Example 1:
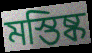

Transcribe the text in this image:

মস্তিষ্ক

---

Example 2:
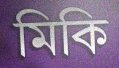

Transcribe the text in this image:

মিকি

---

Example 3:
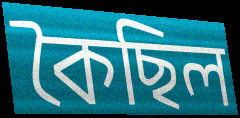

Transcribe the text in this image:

কৈছিল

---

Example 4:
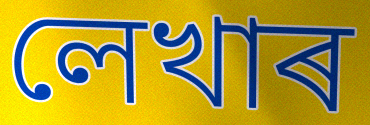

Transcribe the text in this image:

লেখাৰ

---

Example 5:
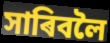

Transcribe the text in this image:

সাৰিবলৈ